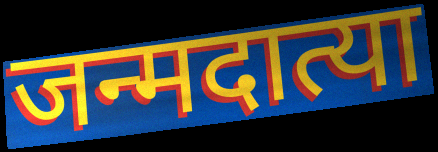
जन्मदात्या